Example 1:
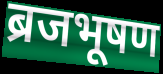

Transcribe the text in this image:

ब्रजभूषण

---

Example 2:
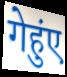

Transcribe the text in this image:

गेहुंए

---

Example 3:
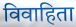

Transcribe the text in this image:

विवाहिता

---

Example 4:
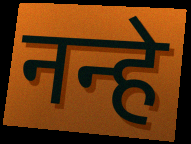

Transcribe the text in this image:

नन्हे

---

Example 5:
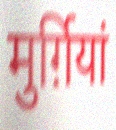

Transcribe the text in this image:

मुर्ग़ियां